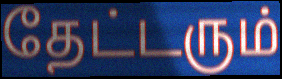
தேட்டரும்